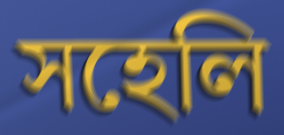
সহেলি